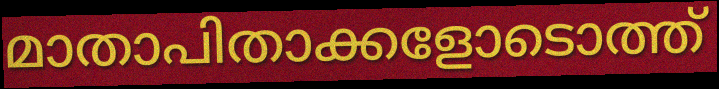
മാതാപിതാക്കളോടൊത്ത്